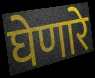
घेणारे